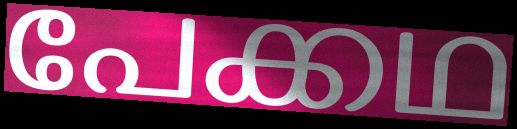
പേക്കഥ